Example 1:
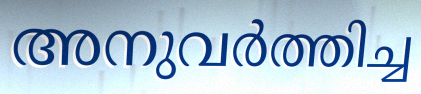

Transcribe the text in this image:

അനുവർത്തിച്ച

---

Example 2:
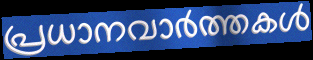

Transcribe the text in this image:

പ്രധാനവാർത്തകൾ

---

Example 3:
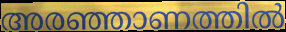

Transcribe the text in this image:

അരഞ്ഞാണത്തിൽ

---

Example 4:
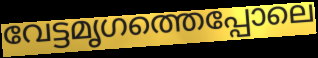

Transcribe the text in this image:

വേട്ടമൃഗത്തെപ്പോലെ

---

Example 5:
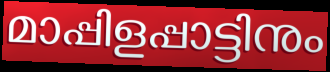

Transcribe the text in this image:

മാപ്പിളപ്പാട്ടിനും